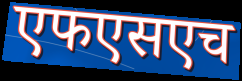
एफएसएच